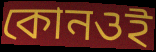
কোনওই